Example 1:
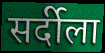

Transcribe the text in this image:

सर्दीला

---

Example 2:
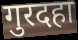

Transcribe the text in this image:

गुरदहा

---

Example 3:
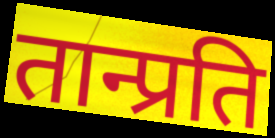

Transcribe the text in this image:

तान्प्रति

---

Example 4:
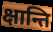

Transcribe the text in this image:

क्षान्ति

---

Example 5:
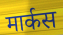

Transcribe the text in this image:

मार्कस